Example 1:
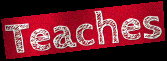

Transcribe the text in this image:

Teaches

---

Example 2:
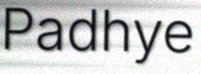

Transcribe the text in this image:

Padhye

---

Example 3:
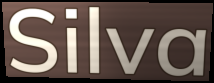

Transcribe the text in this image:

Silva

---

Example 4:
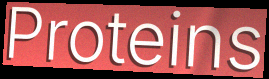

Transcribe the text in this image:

Proteins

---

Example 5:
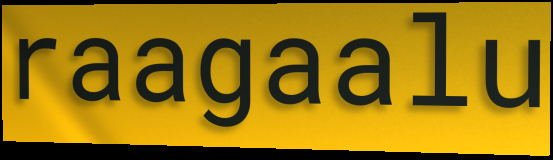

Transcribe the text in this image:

raagaalu